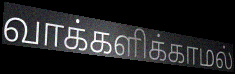
வாக்களிக்காமல்